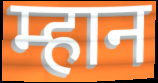
म्हान